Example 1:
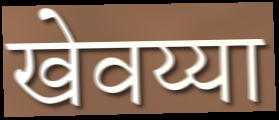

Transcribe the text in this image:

खेवय्या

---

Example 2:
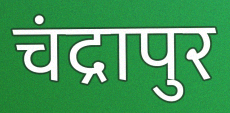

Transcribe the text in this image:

चंद्रापुर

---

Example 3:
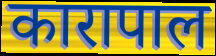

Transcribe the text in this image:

कारापाल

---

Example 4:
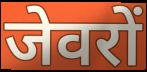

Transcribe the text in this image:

जेवरों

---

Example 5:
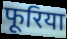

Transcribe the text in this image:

फूरिया